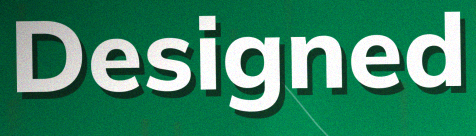
Designed